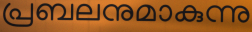
പ്രബലനുമാകുന്നു